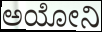
ಅಯೋನಿ